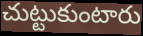
చుట్టుకుంటారు